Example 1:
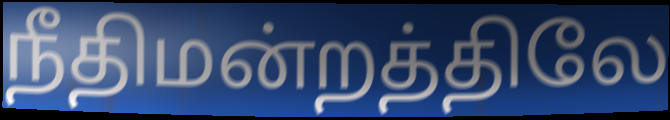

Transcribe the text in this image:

நீதிமன்றத்திலே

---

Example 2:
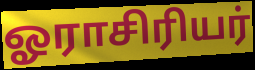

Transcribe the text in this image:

ஓராசிரியர்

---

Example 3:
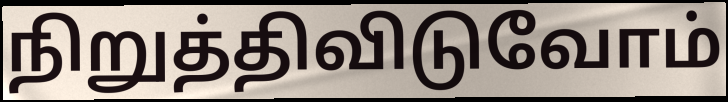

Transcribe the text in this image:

நிறுத்திவிடுவோம்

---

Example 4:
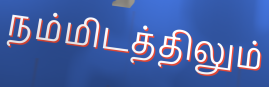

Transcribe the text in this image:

நம்மிடத்திலும்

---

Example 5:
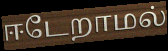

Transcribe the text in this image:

ஈடேறாமல்